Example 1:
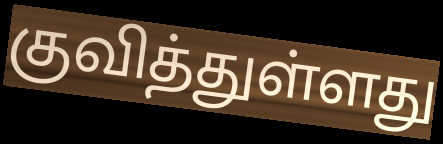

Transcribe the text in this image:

குவித்துள்ளது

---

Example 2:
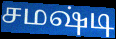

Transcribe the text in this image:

சமஷ்டி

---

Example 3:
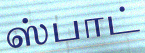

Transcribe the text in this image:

ஸ்பாட்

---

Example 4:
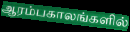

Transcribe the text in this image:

ஆரம்பகாலங்களில்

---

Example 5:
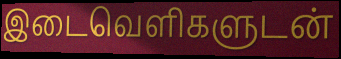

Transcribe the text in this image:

இடைவெளிகளுடன்